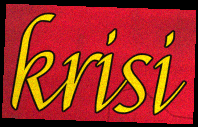
krisi